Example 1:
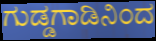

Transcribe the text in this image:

ಗುಡ್ಡಗಾಡಿನಿಂದ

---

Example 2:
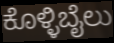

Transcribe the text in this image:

ಕೊಳ್ಳಿಬೈಲು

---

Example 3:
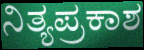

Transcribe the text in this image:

ನಿತ್ಯಪ್ರಕಾಶ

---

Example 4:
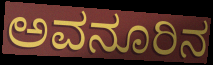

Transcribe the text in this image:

ಅವನೂರಿನ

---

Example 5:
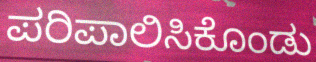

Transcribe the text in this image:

ಪರಿಪಾಲಿಸಿಕೊಂಡು